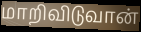
மாறிவிடுவான்